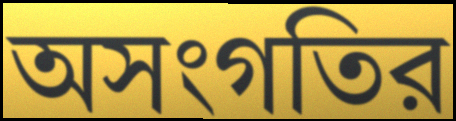
অসংগতির